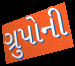
ગ્રુપોની